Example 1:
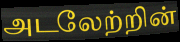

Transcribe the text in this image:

அடலேற்றின்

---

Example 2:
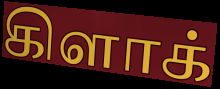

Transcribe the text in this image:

கிளாக்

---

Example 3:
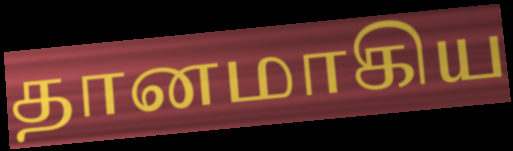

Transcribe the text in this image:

தானமாகிய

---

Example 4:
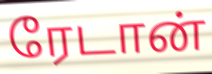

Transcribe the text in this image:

ரேடான்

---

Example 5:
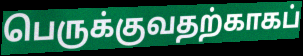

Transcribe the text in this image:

பெருக்குவதற்காகப்